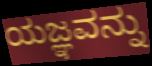
ಯಜ್ಞವನ್ನು